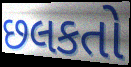
છલકતો